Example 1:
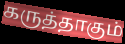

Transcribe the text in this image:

கருத்தாகும்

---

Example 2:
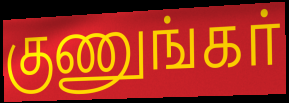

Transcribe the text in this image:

குணுங்கர்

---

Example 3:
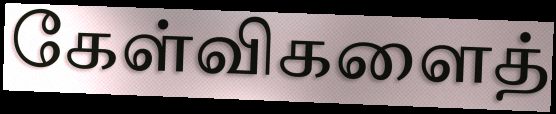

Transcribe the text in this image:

கேள்விகளைத்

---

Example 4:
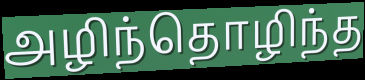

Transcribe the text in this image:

அழிந்தொழிந்த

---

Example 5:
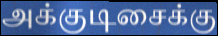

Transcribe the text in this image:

அக்குடிசைக்கு